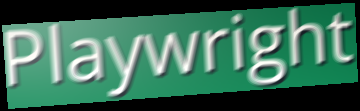
Playwright